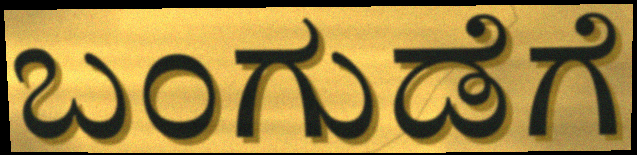
ಬಂಗುಡೆಗೆ